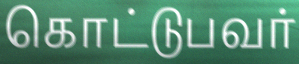
கொட்டுபவர்